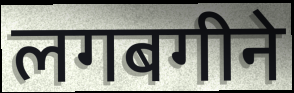
लगबगीने